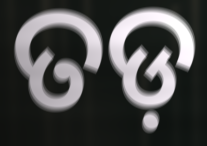
ତଡ଼